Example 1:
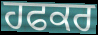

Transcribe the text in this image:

ਹਫਕਰ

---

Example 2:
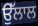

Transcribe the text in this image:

ਉੱਲਾਲ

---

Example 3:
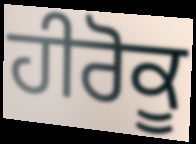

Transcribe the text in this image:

ਹੀਰੋਕੂ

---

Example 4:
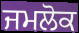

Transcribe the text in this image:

ਜਮਲੋਕ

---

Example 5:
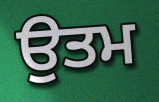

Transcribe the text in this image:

ਉਤਮ